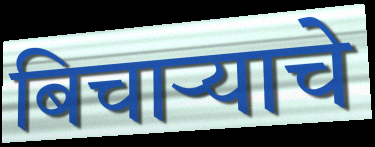
बिचाऱ्याचे